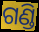
ଗଣ୍ଡି